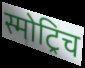
स्मोट्रिच